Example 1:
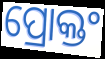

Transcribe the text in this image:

ପ୍ରୋକ୍ତଂ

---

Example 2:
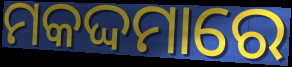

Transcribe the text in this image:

ମକଦ୍ଦମାରେ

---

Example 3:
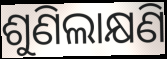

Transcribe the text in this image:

ଶୁଣିଲାକ୍ଷଣି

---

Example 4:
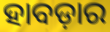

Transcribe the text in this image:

ହାବଡ଼ାର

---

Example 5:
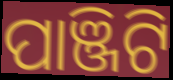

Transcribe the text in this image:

ପାଞ୍ଜିଟି